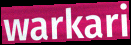
warkari